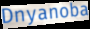
Dnyanoba